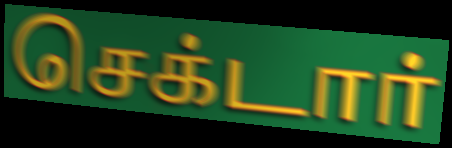
செக்டார்